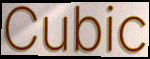
Cubic